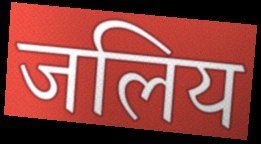
जलिय